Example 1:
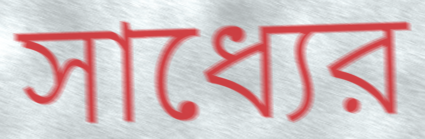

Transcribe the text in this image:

সাধ্যের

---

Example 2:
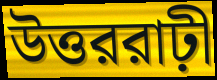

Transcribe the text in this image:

উত্তররাঢ়ী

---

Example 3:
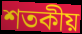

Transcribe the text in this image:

শতকীয়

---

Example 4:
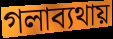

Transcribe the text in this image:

গলাব্যথায়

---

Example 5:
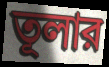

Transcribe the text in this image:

তূলার